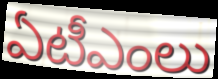
ఏటీఎంలు